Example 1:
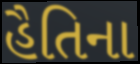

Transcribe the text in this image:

હૈતિના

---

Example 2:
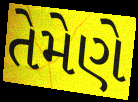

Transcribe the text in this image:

તેમેણે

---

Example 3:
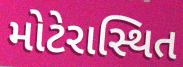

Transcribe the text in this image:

મોટેરાસ્થિત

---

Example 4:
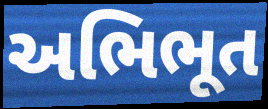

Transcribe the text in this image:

અભિભૂત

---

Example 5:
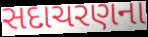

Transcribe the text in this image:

સદાચરણના